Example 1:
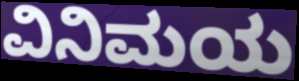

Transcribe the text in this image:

ವಿನಿಮಯ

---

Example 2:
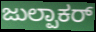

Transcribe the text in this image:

ಜುಲ್ಪಾಕರ್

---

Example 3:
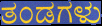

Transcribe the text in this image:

ತಂಡಗಳು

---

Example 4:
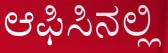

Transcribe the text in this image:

ಆಫಿಸಿನಲ್ಲಿ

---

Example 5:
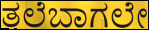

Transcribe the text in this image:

ತಲೆಬಾಗಲೇ